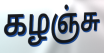
கழஞ்சு